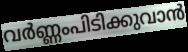
വർണ്ണംപിടിക്കുവാൻ